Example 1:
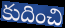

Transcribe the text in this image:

కుదించి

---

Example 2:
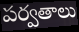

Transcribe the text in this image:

పర్వతాలు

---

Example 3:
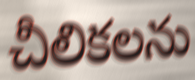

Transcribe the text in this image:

చీలికలను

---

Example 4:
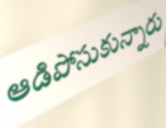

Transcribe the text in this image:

ఆడిపోసుకున్నారు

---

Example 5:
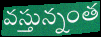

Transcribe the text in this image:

వస్తున్నంత